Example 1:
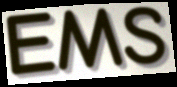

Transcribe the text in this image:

EMS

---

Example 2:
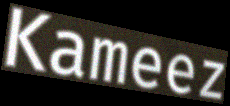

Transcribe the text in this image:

Kameez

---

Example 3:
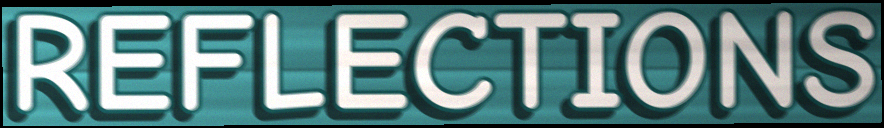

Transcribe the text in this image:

REFLECTIONS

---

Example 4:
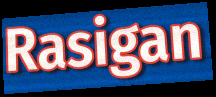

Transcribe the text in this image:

Rasigan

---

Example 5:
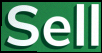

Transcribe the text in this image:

Sell